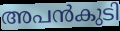
അപൻകുടി